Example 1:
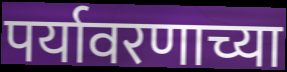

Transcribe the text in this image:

पर्यावरणाच्या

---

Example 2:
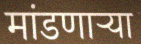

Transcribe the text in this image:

मांडणार्‍या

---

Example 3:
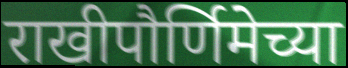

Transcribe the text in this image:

राखीपौर्णिमेच्या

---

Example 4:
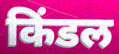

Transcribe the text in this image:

किंडल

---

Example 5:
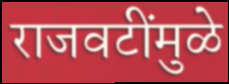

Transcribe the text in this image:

राजवटींमुळे